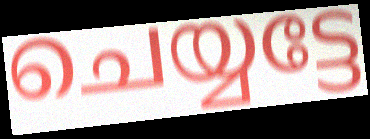
ചെയ്യട്ടേ